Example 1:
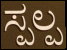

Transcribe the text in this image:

ಸ್ಪಲ್ಪ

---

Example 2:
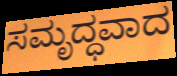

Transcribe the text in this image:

ಸಮೃದ್ಧವಾದ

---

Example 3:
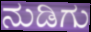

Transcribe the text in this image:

ನುಡಿಗು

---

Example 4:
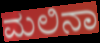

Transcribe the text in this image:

ಮಲಿನಾ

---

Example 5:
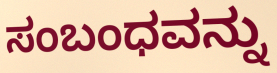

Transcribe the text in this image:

ಸಂಬಂಧವನ್ನು